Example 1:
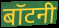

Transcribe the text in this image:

बॉटनी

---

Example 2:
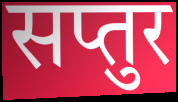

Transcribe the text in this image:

सप्तुर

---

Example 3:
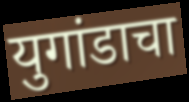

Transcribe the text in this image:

युगांडाचा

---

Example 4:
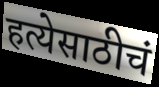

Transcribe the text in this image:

हत्येसाठीचं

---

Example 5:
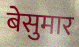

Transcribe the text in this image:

बेसुमार